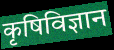
कृषिविज्ञान